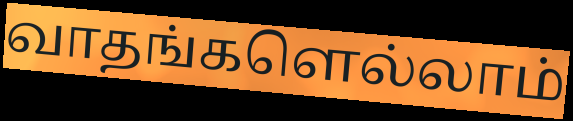
வாதங்களெல்லாம்